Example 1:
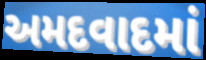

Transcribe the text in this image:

અમદવાદમાં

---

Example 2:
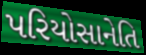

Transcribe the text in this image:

પરિયોસાનેતિ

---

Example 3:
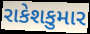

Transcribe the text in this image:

રાકેશકુમાર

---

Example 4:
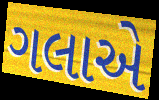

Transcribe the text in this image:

ગલાએ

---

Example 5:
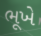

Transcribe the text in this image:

ભૂખે